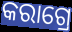
କରାଗ୍ରେ